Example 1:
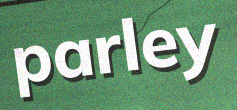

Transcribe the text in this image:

parley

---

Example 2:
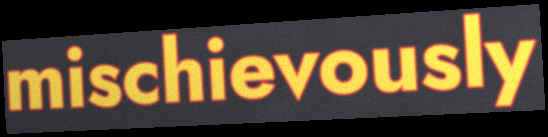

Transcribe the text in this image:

mischievously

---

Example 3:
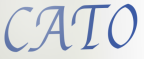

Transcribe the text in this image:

CATO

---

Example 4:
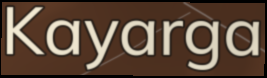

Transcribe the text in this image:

Kayarga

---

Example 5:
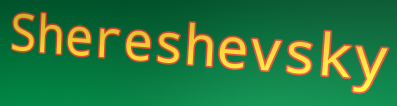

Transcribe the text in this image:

Shereshevsky